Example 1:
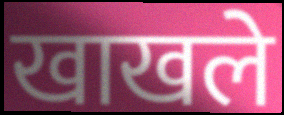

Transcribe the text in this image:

खाखले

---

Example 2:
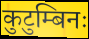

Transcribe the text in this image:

कुटुम्बिनः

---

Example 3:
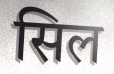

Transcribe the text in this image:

सिल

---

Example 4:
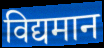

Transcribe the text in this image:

विद्यमान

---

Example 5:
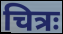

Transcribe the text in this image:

चित्रः